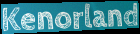
Kenorland